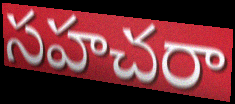
సహచరా